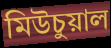
মিউচুয়াল